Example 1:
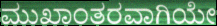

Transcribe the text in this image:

ಮುಖಾಂತರವಾಗಿಯೇ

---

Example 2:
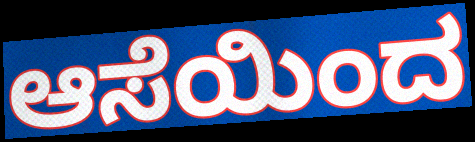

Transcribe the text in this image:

ಆಸೆಯಿಂದ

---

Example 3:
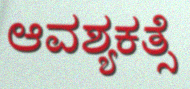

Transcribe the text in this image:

ಆವಶ್ಯಕತ್ಸೆ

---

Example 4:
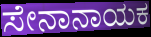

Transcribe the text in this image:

ಸೇನಾನಾಯಕ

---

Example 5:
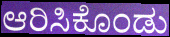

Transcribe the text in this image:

ಆರಿಸಿಕೊಂಡು